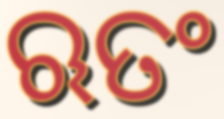
ଋତଂ